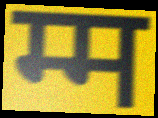
म्म